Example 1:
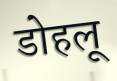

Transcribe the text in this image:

डोहलू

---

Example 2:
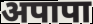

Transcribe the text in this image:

अपापा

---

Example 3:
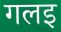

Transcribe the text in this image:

गलइ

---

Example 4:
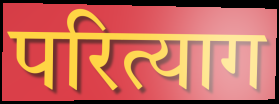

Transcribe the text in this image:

परित्याग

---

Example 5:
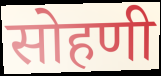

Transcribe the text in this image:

सोहणी